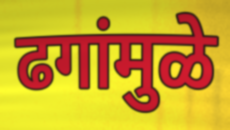
ढगांमुळे